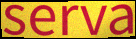
serva